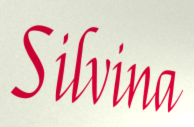
Silvina